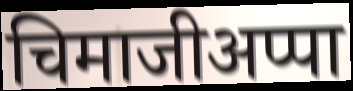
चिमाजीअप्पा